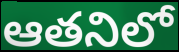
ఆతనిలో